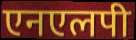
एनएलपी